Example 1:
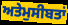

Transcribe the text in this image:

ਅਤੇਮੁਸੀਬਤਾਂ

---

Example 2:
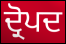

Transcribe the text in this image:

ਦ੍ਰੋਪਦ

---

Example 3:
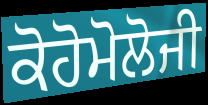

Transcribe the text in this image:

ਕੋਹੋਮੋਲੋਜੀ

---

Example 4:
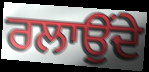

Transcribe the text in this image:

ਰਲਾਉਂਦੇ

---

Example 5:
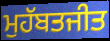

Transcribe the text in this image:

ਮੁਹੱਬਤਜੀਤ